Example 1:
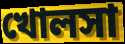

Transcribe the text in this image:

খোলসা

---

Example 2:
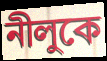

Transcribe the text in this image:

নীলুকে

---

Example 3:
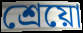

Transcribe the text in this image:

শ্রেয়ো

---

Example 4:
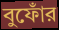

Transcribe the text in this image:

বুফোঁর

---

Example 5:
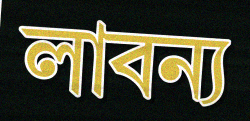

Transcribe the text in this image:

লাবন্য